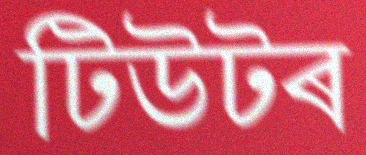
টিউটৰ